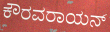
ಕೌರವರಾಯನ್